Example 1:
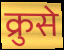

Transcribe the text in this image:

क्रुसे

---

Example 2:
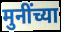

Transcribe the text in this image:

मुनींच्या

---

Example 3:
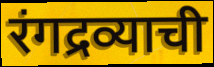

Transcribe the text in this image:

रंगद्रव्याची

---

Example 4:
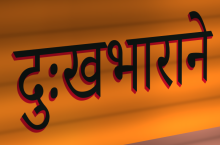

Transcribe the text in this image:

दुःखभाराने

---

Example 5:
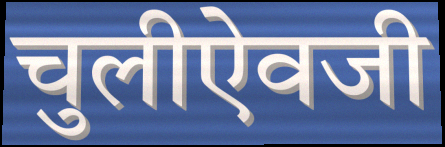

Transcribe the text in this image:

चुलीऐवजी